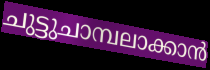
ചുട്ടുചാമ്പലാക്കാൻ